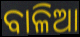
ବାଳିଆ